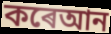
কৰেআন